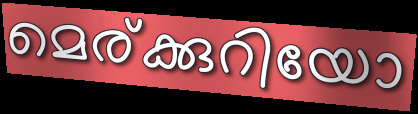
മെര്ക്കുറിയോ